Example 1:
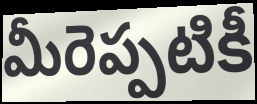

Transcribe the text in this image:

మీరెప్పటికీ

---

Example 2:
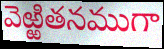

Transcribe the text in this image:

వెఱ్ఱితనముగా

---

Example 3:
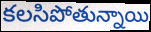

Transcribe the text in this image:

కలసిపోతున్నాయి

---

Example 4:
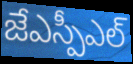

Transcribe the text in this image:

జేఎస్పీఎల్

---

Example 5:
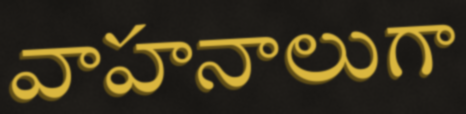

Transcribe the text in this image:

వాహనాలుగా